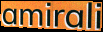
amirali